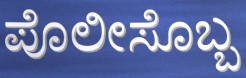
ಪೊಲೀಸೊಬ್ಬ